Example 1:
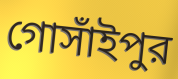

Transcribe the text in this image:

গোসাঁইপুর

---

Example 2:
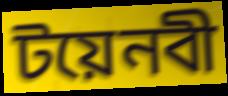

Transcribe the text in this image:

টয়েনবী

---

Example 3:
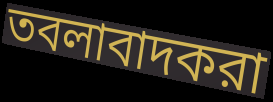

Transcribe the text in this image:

তবলাবাদকরা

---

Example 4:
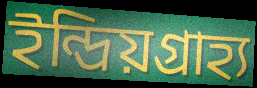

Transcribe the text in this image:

ইন্দ্রিয়গ্রাহ্য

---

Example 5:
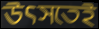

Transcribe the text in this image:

উৎসতেই